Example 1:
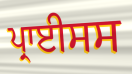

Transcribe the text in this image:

ਪ੍ਰਾਈਸਸ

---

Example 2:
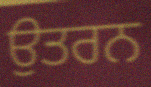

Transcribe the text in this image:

ਉਤਰਨ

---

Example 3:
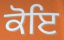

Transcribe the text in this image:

ਕੋਇ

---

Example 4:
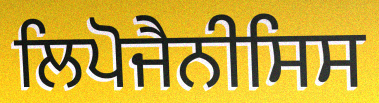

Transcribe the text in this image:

ਲਿਪੋਜੈਨੀਸਿਸ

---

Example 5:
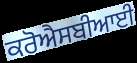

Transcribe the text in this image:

ਕਰੋਐਸਬੀਆਈ